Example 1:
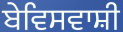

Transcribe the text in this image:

ਬੇਵਿਸਵਾਸ਼ੀ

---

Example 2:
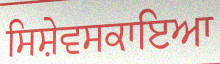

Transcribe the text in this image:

ਸਿਸ਼ੇਵਸਕਾਇਆ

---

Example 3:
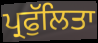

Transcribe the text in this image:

ਪ੍ਰਫੁੱਲਿਤਾ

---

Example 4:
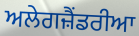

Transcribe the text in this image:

ਅਲੇਗਜ਼ੈਂਡਰੀਆ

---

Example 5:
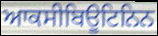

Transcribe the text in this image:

ਆਕਸੀਬਿਊਟਿਨਿਨ